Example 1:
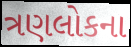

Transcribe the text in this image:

ત્રણલોકના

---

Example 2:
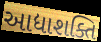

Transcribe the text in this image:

આદ્યાશક્તિ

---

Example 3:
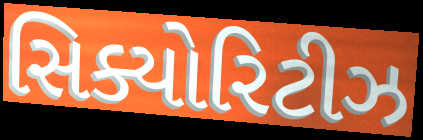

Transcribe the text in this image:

સિક્યોરિટીઝ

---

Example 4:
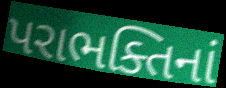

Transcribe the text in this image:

પરાભક્તિનાં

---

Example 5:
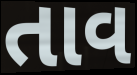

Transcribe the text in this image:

તાવ